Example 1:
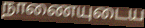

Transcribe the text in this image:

நாணையுடைய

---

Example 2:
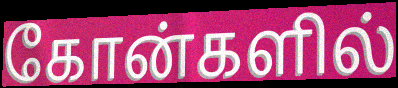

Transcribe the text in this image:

கோன்களில்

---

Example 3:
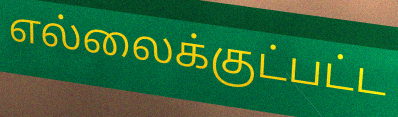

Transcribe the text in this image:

எல்லைக்குட்பட்ட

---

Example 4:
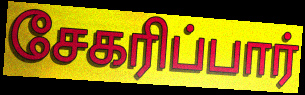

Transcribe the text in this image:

சேகரிப்பார்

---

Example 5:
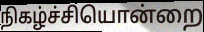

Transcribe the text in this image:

நிகழ்ச்சியொன்றை